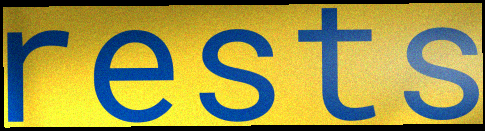
rests